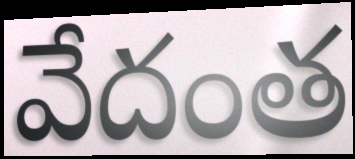
వేదంత